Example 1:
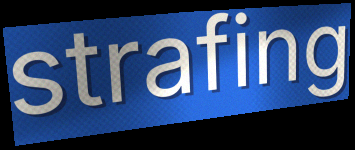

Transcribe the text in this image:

strafing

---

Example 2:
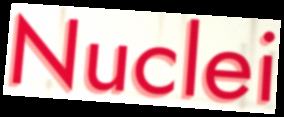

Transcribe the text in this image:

Nuclei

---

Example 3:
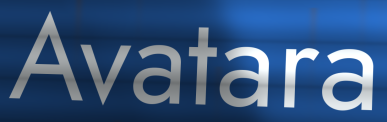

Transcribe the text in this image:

Avatara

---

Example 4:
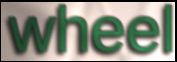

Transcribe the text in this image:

wheel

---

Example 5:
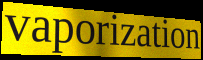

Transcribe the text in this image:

vaporization